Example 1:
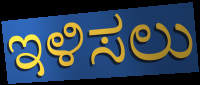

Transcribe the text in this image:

ಇಳಿಸಲು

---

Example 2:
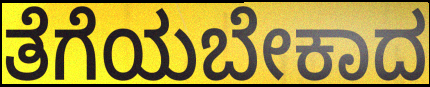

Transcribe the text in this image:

ತೆಗೆಯಬೇಕಾದ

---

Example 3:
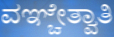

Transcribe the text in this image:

ವಞ್ಚೇತ್ವಾತಿ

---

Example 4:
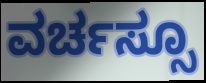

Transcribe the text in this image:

ವರ್ಚಸ್ಸೂ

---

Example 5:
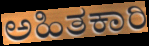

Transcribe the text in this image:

ಅಹಿತಕಾರಿ